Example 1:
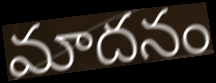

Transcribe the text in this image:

మాదనం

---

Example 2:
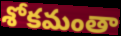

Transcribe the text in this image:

శోకమంతా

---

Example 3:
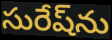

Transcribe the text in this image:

సురేష్‌ను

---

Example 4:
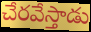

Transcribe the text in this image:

చేరవేస్తాడు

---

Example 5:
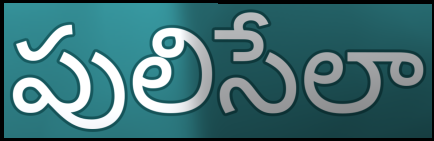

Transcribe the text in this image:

పులిసేలా